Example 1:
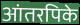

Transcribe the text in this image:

आंतरपिके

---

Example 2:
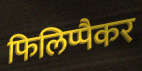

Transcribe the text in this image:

फिलिप्पैकर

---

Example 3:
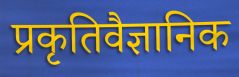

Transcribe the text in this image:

प्रकृतिवैज्ञानिक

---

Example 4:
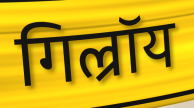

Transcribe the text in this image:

गिल्रॉय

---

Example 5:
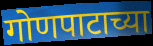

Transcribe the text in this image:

गोणपाटाच्या